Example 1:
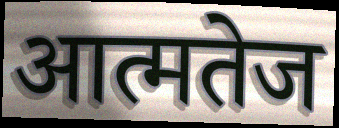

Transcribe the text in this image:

आत्मतेज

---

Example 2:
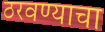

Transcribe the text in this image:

ठरवण्याचा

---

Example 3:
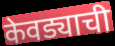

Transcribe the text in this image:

केवड्याची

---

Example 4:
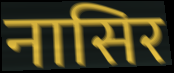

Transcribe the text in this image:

नासिर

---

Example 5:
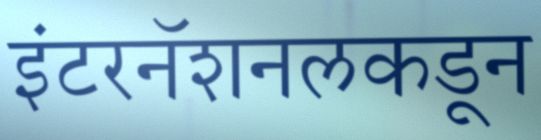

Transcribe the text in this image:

इंटरनॅशनलकडून